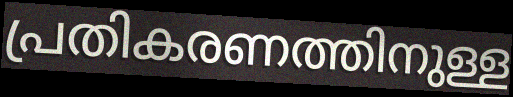
പ്രതികരണത്തിനുള്ള